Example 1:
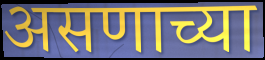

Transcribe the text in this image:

असणाच्या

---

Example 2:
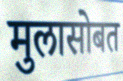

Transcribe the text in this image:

मुलासोबत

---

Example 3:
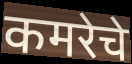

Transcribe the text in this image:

कमरेचे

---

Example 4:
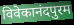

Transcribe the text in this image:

विवेकानंदपुरम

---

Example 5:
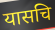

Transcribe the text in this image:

यासचि